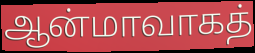
ஆன்மாவாகத்